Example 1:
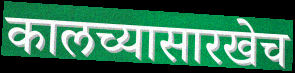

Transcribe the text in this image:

कालच्यासारखेच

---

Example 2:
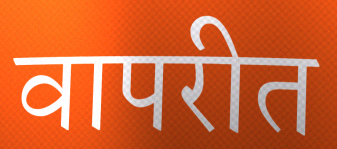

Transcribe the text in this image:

वापरीत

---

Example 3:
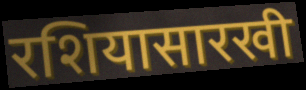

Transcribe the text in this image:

रशियासारखी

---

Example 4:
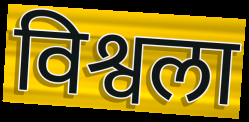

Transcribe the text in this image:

विश्वला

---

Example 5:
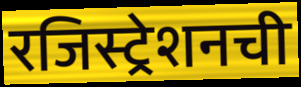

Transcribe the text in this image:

रजिस्ट्रेशनची